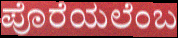
ಪೊರೆಯಲೆಂಬ